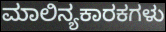
ಮಾಲಿನ್ಯಕಾರಕಗಳು